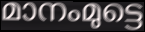
മാനംമുട്ടെ